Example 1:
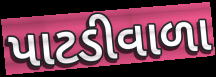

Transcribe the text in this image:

પાટડીવાળા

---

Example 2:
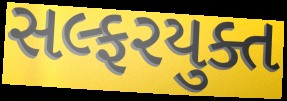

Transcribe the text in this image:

સલ્ફરયુક્ત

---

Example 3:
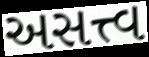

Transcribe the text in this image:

અસત્ત્વ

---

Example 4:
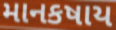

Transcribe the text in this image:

માનકષાય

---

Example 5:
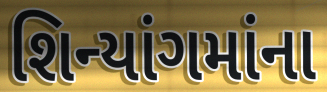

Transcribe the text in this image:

શિન્યાંગમાંના